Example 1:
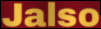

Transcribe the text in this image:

Jalso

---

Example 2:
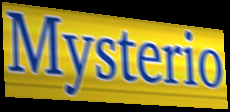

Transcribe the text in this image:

Mysterio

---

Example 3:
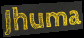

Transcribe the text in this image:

Jhuma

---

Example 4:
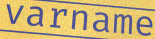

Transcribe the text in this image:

varname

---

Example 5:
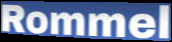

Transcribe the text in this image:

Rommel